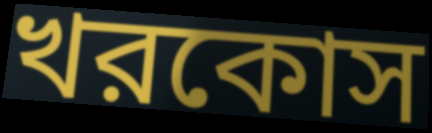
খরকোস